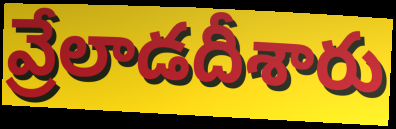
వ్రేలాడదీశారు